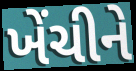
ખેંચીને